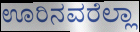
ಊರಿನವರೆಲ್ಲಾ